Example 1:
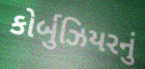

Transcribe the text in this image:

કોર્બુઝિયરનું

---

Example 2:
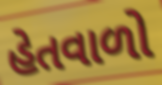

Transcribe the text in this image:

હેતવાળો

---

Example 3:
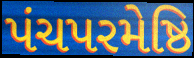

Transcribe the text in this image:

પંચપરમેષ્ઠિ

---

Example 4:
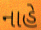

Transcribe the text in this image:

નાહે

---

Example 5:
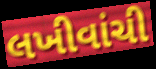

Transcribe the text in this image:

લખીવાંચી